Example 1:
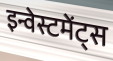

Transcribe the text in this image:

इन्वेस्टमेंट्स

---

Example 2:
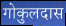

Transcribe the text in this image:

गोकुलदास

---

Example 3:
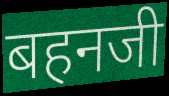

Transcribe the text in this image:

बहनजी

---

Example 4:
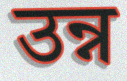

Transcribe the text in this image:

उन्न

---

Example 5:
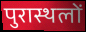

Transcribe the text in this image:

पुरास्थलों